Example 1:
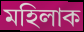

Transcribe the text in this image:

মহিলাক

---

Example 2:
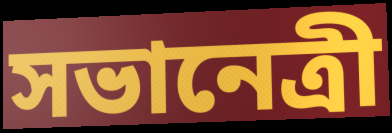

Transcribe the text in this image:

সভানেত্ৰী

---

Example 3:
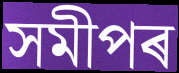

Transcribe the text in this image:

সমীপৰ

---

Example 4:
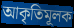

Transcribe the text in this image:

আকৃতিমূলক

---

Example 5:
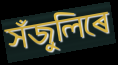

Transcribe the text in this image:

সঁজুলিৰে